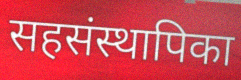
सहसंस्थापिका